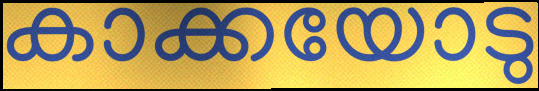
കാക്കയോടു